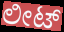
ಲೀಟ್